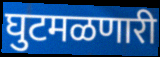
घुटमळणारी